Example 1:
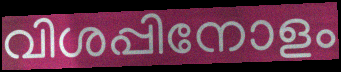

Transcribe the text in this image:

വിശപ്പിനോളം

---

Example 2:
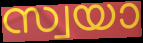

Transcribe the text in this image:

സ്വയാ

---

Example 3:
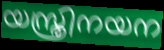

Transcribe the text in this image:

യസ്ത്രിനയന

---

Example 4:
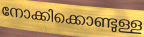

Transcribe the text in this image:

നോക്കിക്കൊണ്ടുള്ള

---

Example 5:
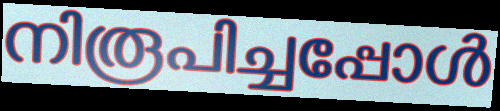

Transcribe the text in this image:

നിരൂപിച്ചപ്പോൾ